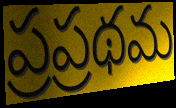
ప్రప్రథమ